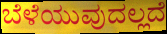
ಬೆಳೆಯುವುದಲ್ಲದೆ